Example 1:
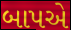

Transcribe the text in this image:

બાપએ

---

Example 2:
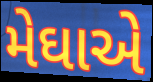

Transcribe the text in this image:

મેઘાએ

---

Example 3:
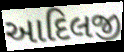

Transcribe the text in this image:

આદિલજી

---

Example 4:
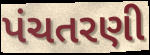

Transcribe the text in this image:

પંચતરણી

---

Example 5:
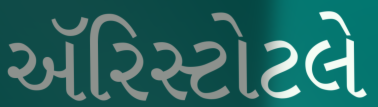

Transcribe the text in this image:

ઍરિસ્ટોટલે